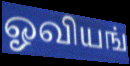
ஓவியங்